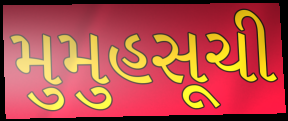
મુમુહસૂચી